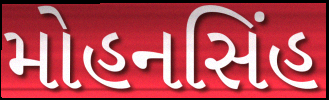
મોહનસિંહ